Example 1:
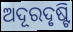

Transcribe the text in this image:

ଅଦୂରଦୃଷ୍ଟି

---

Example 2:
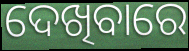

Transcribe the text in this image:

ଦେଖିବାରେ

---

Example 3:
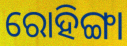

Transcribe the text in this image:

ରୋହିଙ୍ଗା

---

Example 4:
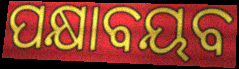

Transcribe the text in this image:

ପକ୍ଷାବୟବ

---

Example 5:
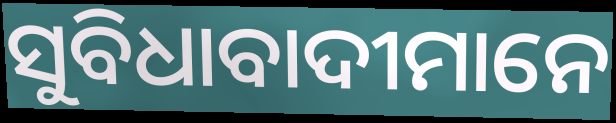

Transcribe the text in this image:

ସୁବିଧାବାଦୀମାନେ